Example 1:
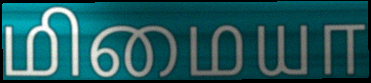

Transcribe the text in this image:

மிமையா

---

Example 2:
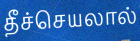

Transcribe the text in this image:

தீச்செயலால்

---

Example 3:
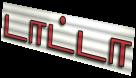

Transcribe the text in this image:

டாட்டா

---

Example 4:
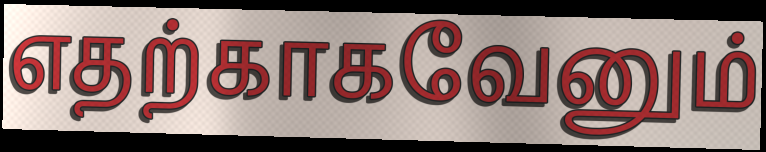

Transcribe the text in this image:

எதற்காகவேனும்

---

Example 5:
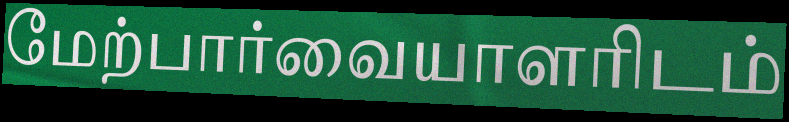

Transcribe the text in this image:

மேற்பார்வையாளரிடம்